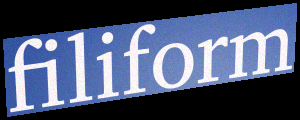
filiform